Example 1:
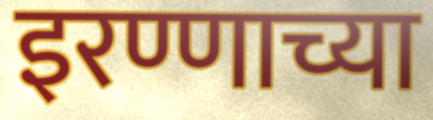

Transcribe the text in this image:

इरण्णाच्या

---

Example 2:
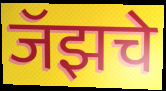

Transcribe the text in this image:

जॅझचे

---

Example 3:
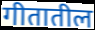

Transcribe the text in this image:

गीतातील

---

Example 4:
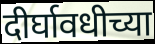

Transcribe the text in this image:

दीर्घावधीच्या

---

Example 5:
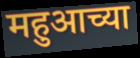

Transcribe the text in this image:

महुआच्या